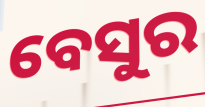
ବେସୁର